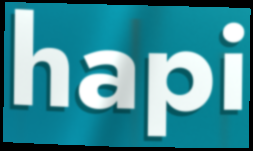
hapi